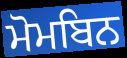
ਮੋਮਬਿਨ